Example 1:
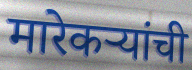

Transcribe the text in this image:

मारेकऱ्यांची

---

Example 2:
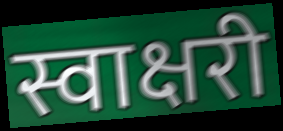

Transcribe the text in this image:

स्वाक्षरी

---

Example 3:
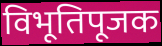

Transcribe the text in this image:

विभूतिपूजक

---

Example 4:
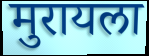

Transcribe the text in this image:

मुरायला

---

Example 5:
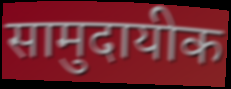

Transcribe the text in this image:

सामुदायीक